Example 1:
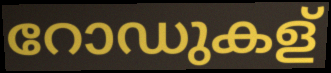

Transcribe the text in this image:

റോഡുകള്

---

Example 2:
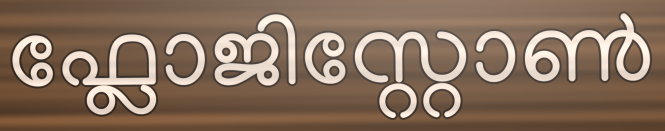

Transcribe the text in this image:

ഫ്ലോജിസ്റ്റോൺ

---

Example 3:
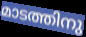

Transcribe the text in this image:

മാടത്തിനു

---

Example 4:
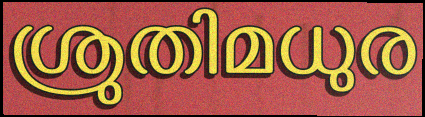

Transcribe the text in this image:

ശ്രുതിമധുര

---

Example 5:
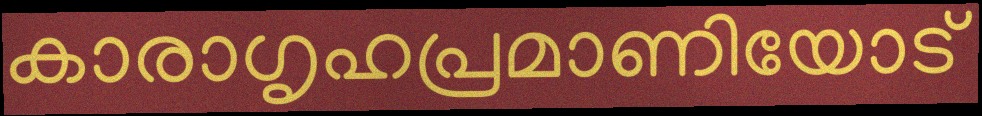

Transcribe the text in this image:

കാരാഗൃഹപ്രമാണിയോട്